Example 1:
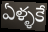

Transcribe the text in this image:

ఏళ్ళకే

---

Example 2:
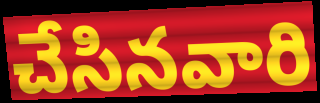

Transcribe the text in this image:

చేసినవారి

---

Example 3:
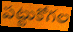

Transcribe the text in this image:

పట్టుకోగల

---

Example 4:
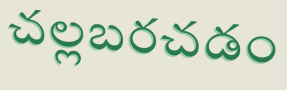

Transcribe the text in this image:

చల్లబరచడం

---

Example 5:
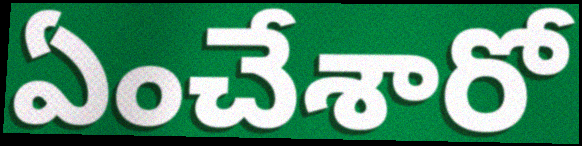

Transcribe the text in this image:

ఏంచేశారో